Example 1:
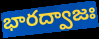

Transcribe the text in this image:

భారద్వాజః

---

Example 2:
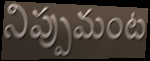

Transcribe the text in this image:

నిప్పుమంట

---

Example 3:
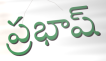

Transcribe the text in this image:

ప్రభాష్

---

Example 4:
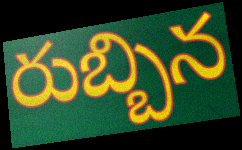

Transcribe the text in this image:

రుబ్బిన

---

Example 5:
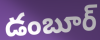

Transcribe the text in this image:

డంబూర్